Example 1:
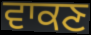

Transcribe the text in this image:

ਵਾਕਣ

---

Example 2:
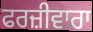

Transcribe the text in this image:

ਫਰਜ਼ੀਵਾਰਾ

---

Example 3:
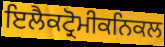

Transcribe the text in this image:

ਇਲੈਕਟ੍ਰੋਮੀਕਨਿਕਲ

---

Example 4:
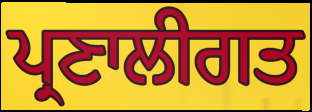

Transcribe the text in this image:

ਪ੍ਰਣਾਲੀਗਤ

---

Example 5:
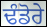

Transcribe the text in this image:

ਢੰਡੋਰੇ